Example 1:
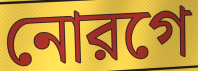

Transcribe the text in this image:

নোরগে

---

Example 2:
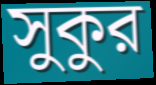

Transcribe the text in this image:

সুকুর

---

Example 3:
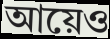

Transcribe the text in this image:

আয়েও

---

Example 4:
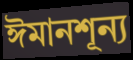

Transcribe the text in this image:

ঈমানশূন্য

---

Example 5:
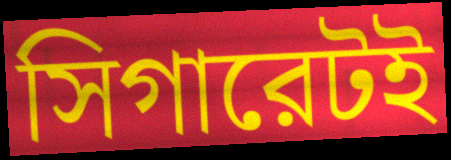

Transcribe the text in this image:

সিগারেটই